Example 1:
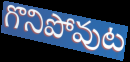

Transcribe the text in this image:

గొనిపోవుట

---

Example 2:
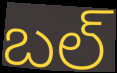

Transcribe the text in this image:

బల్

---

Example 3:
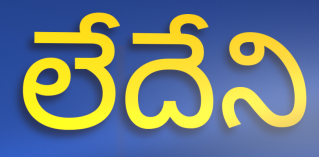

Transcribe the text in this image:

లేదేని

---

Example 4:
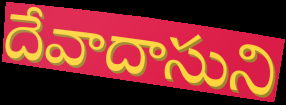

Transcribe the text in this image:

దేవాదాసుని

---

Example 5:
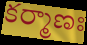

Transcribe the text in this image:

కర్మాణః